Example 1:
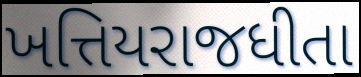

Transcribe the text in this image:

ખત્તિયરાજધીતા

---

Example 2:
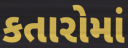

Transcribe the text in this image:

કતારોમાં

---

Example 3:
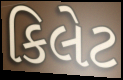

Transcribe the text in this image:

કિલેટ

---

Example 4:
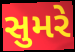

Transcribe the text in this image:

સુમરે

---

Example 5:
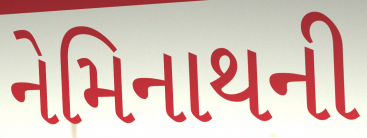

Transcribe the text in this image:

નેમિનાથની